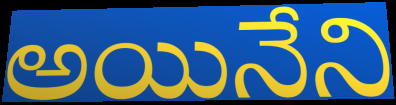
అయినేని